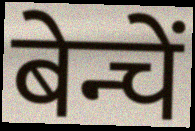
बेन्चें